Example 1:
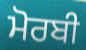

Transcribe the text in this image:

ਮੋਰਬੀ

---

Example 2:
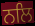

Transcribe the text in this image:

ਨਲਿ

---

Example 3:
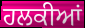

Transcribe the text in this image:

ਹਲਕੀਆਂ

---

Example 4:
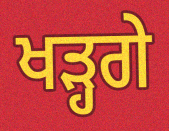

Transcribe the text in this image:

ਖੜ੍ਹਗੇ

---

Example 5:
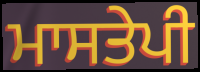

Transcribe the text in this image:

ਮਾਸਤੇਪੀ